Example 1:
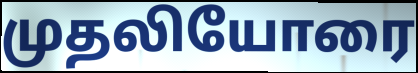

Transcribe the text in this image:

முதலியோரை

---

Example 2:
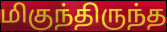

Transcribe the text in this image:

மிகுந்திருந்த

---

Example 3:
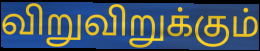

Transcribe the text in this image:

விறுவிறுக்கும்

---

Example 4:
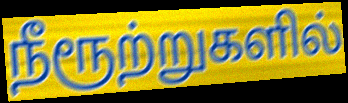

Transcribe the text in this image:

நீரூற்றுகளில்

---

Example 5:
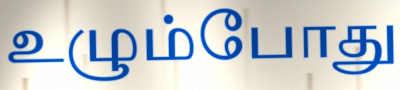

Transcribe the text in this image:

உழும்போது